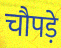
चौपड़े